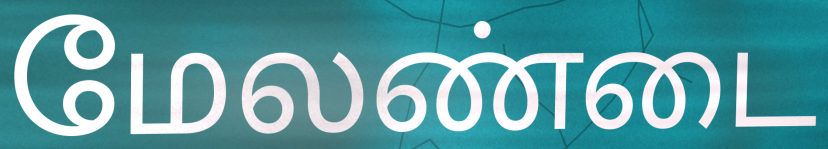
மேலண்டை